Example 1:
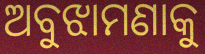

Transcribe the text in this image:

ଅବୁଝାମଣାକୁ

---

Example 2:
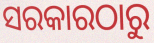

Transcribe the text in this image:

ସରକାରଠାରୁ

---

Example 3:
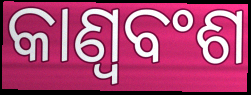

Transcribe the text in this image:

କାଣ୍ୱବଂଶ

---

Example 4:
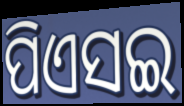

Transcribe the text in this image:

ପିଏସଇ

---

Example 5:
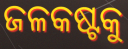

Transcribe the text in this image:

ଜଳକଷ୍ଟକୁ